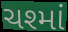
ચશ્માં